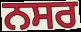
ਨਸਰ